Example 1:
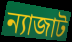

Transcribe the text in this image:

ন্যাজাট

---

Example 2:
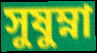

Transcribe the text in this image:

সুষুম্না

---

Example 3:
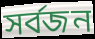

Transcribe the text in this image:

সর্বজন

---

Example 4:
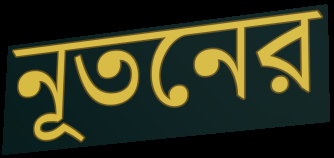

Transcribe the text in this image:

নূতনের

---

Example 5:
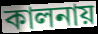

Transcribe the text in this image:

কালনায়